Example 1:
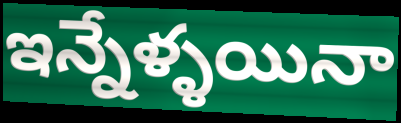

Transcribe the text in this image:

ఇన్నేళ్ళయినా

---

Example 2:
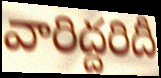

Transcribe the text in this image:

వారిద్దరిదీ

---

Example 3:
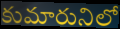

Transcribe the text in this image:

కుమారునిలో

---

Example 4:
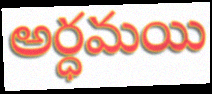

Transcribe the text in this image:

అర్ధమయి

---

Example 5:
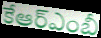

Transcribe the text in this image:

కేఆర్ఎంబీ